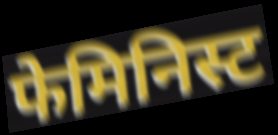
फेमिनिस्ट